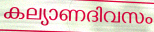
കല്യാണദിവസം